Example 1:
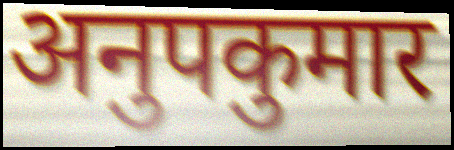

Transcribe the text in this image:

अनुपकुमार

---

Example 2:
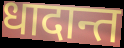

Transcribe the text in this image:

धादान्त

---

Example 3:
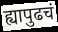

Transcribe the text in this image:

ह्यापुढचं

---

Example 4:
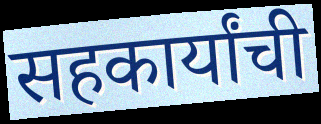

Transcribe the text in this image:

सहकार्यांची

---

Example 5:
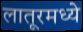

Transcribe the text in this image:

लातूरमध्ये